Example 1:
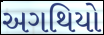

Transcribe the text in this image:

અગથિયો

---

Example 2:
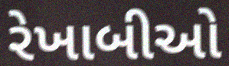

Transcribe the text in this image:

રેખાબીઓ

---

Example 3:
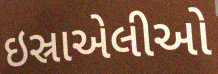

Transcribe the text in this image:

ઇસ્રાએલીઓ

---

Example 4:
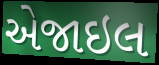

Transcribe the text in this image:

એજાઇલ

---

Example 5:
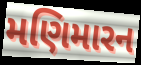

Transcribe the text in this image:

મણિમારન